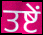
उष्टें